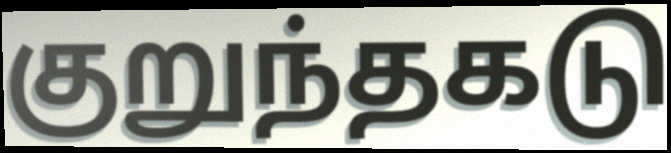
குறுந்தகடு